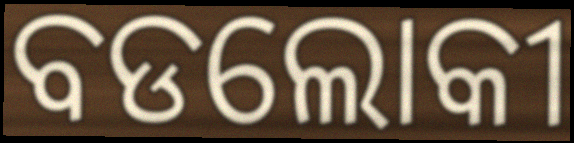
ବଡଲୋକୀ